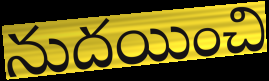
నుదయించి